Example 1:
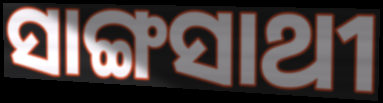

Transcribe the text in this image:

ସାଙ୍ଗସାଥୀ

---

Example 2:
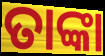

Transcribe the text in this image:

ତାଙ୍କା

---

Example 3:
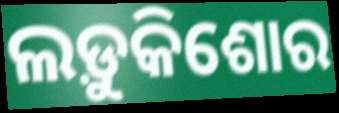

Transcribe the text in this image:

ଲଡ଼ୁକିଶୋର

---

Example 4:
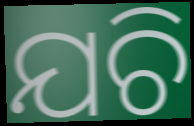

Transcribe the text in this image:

ଯଚି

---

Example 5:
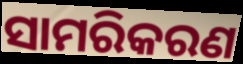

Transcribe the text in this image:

ସାମରିକରଣ